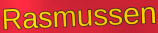
Rasmussen